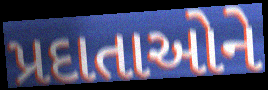
પ્રદાતાઓને